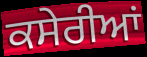
ਕਸੇਰੀਆਂ